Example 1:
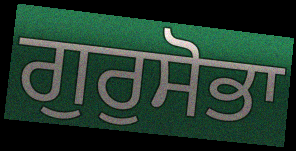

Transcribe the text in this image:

ਗੁਰੁਸੋਭਾ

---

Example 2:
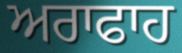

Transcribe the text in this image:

ਅਰਾਫਾਹ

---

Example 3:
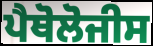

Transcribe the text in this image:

ਪੈਥੋਲੋਜੀਸ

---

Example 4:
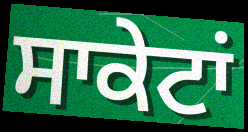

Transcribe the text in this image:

ਸਾਕੇਟਾਂ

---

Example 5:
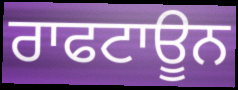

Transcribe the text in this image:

ਰਾਫਟਾਊਨ